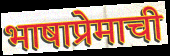
भाषाप्रेमाची